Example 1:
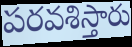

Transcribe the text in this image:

పరవశిస్తారు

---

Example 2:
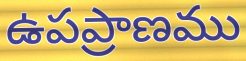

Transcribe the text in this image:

ఉపప్రాణము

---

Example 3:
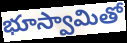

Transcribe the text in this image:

భూస్వామితో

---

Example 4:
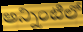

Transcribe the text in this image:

అన్నింటిలో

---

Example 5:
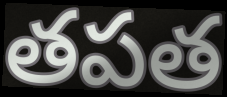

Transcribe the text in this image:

తపత